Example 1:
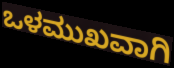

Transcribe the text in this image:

ಒಳಮುಖವಾಗಿ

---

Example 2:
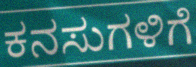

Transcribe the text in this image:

ಕನಸುಗಳಿಗೆ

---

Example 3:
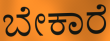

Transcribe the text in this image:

ಬೇಕಾರೆ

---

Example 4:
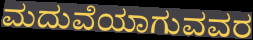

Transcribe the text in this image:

ಮದುವೆಯಾಗುವವರ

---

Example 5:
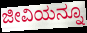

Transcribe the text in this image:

ಜೀವಿಯನ್ನೂ